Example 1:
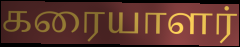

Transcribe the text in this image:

கரையாளர்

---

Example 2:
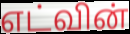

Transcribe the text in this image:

எட்வின்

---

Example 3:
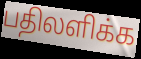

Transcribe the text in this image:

பதிலளிக்க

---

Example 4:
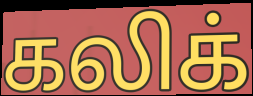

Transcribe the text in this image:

கலிக்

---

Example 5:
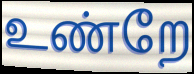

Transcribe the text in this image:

உண்றே